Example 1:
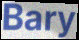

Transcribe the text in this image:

Bary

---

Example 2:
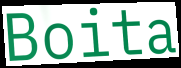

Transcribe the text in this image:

Boita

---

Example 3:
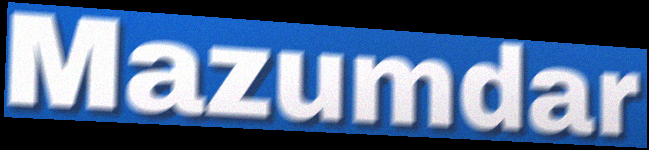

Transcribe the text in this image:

Mazumdar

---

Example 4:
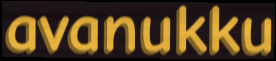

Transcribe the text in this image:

avanukku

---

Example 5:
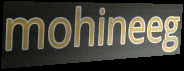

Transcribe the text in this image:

mohineeg